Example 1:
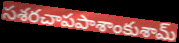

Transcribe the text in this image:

సశరచాపపాశాంకుశామ్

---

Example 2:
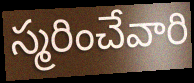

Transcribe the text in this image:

స్మరించేవారి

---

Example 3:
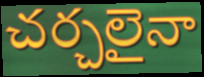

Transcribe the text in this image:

చర్చలైనా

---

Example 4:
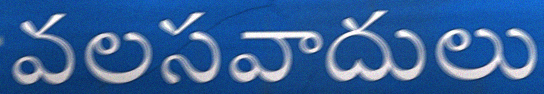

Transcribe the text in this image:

వలసవాదులు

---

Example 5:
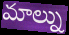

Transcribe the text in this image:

మాల్ను